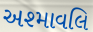
અશ્માવલિ